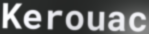
Kerouac